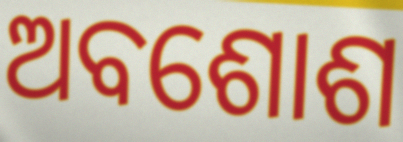
ଅବଶୋଶ